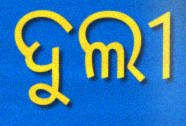
ଦୁଲୀ